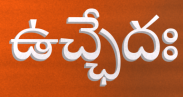
ఉచ్ఛేదః